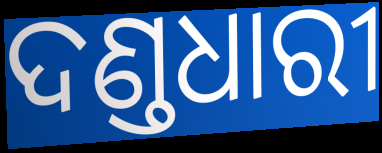
ଦଣ୍ଡଧାରୀ